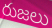
రుజలు